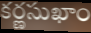
కర్ణసుఖాం